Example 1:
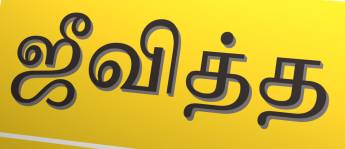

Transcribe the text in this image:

ஜீவித்த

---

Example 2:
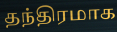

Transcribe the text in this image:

தந்திரமாக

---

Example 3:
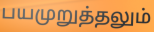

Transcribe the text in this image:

பயமுறுத்தலும்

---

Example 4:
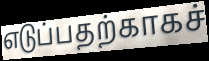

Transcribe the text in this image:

எடுப்பதற்காகச்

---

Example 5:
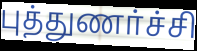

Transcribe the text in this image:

புத்துணர்ச்சி